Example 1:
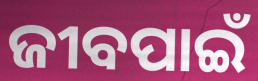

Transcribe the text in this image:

ଜୀବପାଇଁ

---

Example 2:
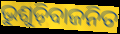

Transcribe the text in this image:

ଭୁଶୁଡ଼ିବାଜନିତ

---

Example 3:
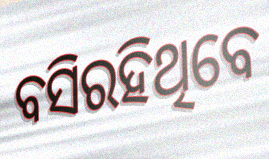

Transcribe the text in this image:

ବସିରହିଥିବେ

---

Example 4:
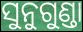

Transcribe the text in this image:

ସୁନୁଗୁଣ୍ଡା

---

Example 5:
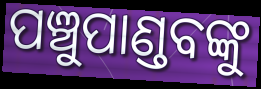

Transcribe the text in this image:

ପଞ୍ଚୁପାଣ୍ଡବଙ୍କୁ